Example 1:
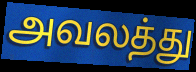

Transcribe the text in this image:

அவலத்து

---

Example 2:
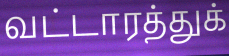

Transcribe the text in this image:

வட்டாரத்துக்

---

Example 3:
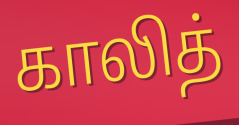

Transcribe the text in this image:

காலித்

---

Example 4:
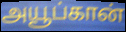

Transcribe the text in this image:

அயூப்கான்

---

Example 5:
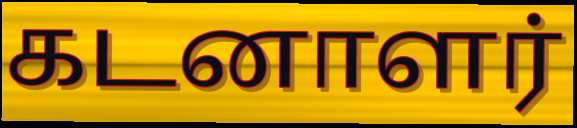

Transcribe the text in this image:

கடனாளர்